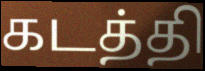
கடத்தி